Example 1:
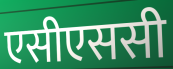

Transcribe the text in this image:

एसीएससी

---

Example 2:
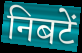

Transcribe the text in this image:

निबटें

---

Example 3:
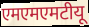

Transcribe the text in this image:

एमएमएमटीयू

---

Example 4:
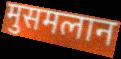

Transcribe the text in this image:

मुसमलान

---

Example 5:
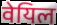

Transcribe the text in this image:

वेयिल